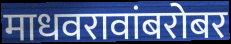
माधवरावांबरोबर